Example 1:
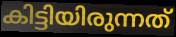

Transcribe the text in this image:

കിട്ടിയിരുന്നത്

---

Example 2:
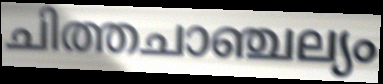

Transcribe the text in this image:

ചിത്തചാഞ്ചല്യം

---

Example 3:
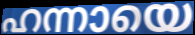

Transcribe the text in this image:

ഹന്നായെ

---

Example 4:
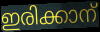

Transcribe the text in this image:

ഇരിക്കാന്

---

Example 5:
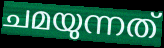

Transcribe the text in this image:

ചമയുന്നത്